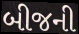
બીજની